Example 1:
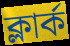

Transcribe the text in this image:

ক্লার্ক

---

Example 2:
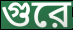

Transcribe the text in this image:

গুরে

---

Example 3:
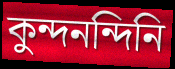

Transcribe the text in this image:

কুন্দনন্দিনি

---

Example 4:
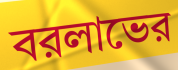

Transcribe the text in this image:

বরলাভের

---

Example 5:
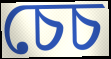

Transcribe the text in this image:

চেচ